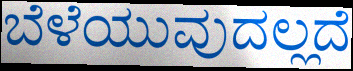
ಬೆಳೆಯುವುದಲ್ಲದೆ